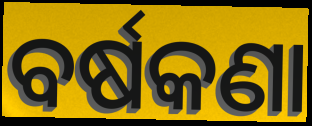
ବର୍ଷକଣା